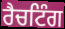
ਰੈਚਟਿੰਗ